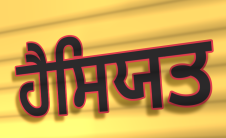
ਹੈਸਿਯਤ